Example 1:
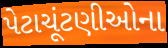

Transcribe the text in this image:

પેટાચૂંટણીઓના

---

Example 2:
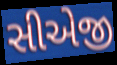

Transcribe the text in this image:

સીએજી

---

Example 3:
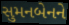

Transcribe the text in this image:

સુમનબેનને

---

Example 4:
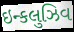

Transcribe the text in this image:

ઇન્કલુઝિવ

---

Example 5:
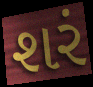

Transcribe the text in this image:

શરં